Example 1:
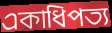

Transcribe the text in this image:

একাধিপত্য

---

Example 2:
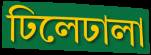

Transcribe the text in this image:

ঢিলেঢালা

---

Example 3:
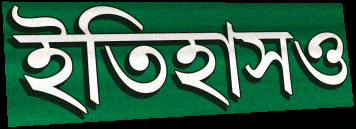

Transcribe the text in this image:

ইতিহাসও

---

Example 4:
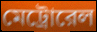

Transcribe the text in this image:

মেট্রোরেল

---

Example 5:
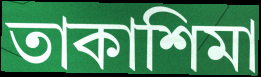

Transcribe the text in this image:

তাকাশিমা